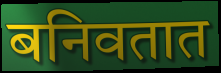
बनिवतात